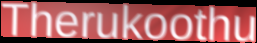
Therukoothu